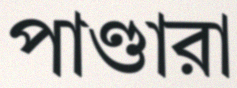
পাণ্ডারা